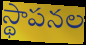
స్థాపనల